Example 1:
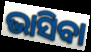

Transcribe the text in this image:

ଭାସିବା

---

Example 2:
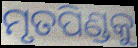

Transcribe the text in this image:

ମୃତପିଣ୍ଡକୁ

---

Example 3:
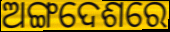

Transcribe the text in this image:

ଅଙ୍ଗଦେଶରେ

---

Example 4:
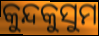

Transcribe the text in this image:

କୁନ୍ଦକୁସୁମ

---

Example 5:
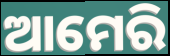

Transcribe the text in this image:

ଆମେରି